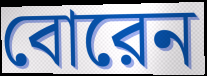
বোরেন